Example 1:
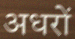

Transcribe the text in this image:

अधरों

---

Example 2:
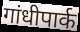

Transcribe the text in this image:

गांधीपार्क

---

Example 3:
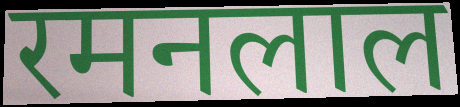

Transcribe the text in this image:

रमनलाल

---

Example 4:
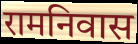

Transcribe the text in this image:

रामनिवास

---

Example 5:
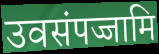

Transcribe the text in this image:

उवसंपज्जामि